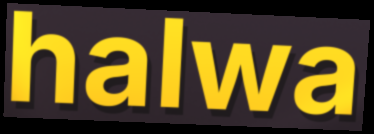
halwa